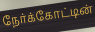
நேர்க்கோட்டின்